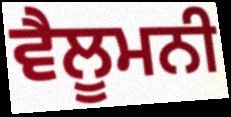
ਵੈਲੂਮਨੀ